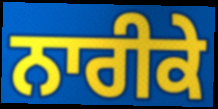
ਨਾਰੀਕੇ